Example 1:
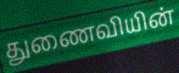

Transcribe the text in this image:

துணைவியின்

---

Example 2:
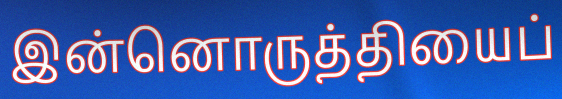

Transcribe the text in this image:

இன்னொருத்தியைப்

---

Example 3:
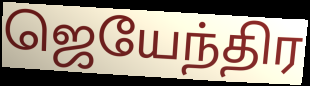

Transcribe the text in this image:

ஜெயேந்திர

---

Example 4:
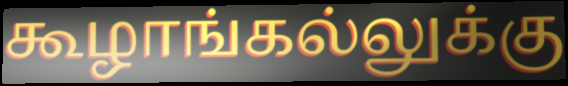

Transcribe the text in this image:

கூழாங்கல்லுக்கு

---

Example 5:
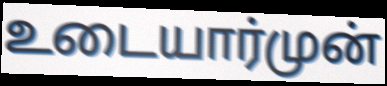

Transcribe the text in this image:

உடையார்முன்